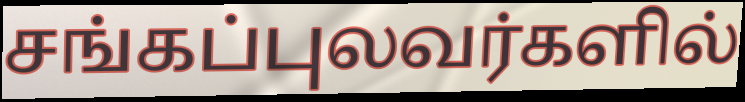
சங்கப்புலவர்களில்